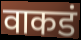
वाकडं